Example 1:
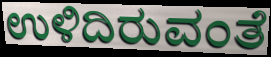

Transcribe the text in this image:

ಉಳಿದಿರುವಂತೆ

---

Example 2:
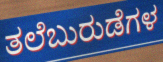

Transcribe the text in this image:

ತಲೆಬುರುಡೆಗಳ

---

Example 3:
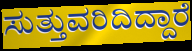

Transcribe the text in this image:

ಸುತ್ತುವರಿದಿದ್ದಾರೆ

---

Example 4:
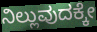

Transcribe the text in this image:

ನಿಲ್ಲುವುದಕ್ಕೇ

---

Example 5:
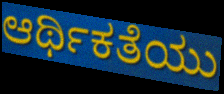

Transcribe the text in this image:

ಆರ್ಥಿಕತೆಯು